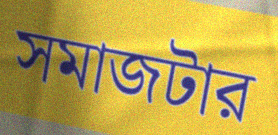
সমাজটার